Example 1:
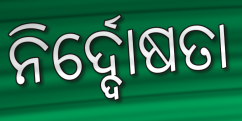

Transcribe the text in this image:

ନିର୍ଦ୍ଦୋଷତା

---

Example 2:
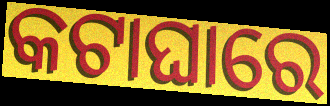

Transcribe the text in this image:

କଟାଘାରେ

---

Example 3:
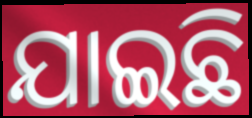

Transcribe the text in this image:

ଯାଇଛି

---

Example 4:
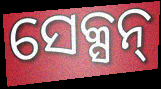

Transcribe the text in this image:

ସେକ୍ସନ୍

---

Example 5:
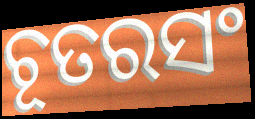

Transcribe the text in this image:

ଚୂତରସଂ